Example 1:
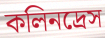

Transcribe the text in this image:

কলিনদ্রেস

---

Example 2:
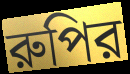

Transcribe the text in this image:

রুপির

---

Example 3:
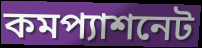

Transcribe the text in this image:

কমপ্যাশনেট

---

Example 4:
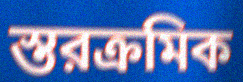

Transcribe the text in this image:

স্তরক্রমিক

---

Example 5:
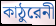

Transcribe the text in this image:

কাঠুরেনী